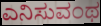
ಎನಿಸುವಂಥ